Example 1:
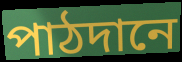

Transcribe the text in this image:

পাঠদানে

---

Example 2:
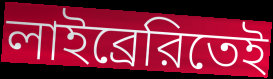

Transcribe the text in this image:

লাইব্রেরিতেই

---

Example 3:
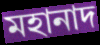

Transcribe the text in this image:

মহানাদ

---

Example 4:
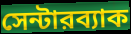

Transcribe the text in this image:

সেন্টারব্যাক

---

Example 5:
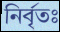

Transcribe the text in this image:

নির্বৃতঃ